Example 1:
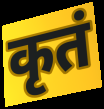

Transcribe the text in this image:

कृतं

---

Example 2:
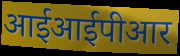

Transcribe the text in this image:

आईआईपीआर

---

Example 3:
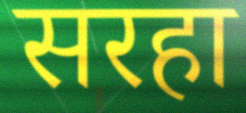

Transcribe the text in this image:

सरहा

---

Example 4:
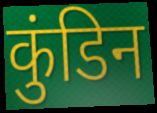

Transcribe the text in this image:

कुंडिन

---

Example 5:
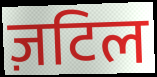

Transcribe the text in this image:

ज़टिल